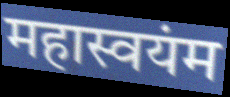
महास्वयंम